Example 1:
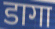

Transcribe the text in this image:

डागा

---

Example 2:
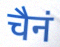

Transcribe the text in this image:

चैनं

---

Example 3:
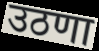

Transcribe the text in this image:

उठणा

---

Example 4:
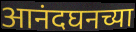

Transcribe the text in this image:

आनंदघनच्या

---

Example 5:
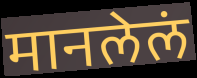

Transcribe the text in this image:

मानलेलं